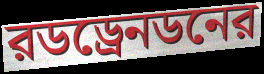
রডড্রেনডনের